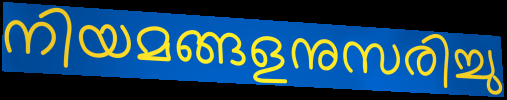
നിയമങ്ങളനുസരിച്ചു